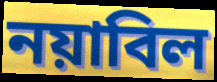
নয়াবিল